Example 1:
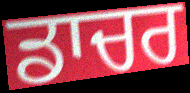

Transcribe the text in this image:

ਡਾਚਰ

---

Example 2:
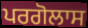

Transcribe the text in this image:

ਪਰਗੋਲਾਸ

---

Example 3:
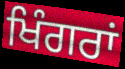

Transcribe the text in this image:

ਖਿੰਗਰਾਂ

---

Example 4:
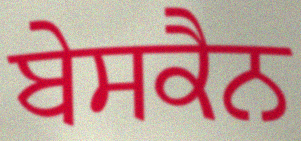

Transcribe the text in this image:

ਬੇਸਕੈਨ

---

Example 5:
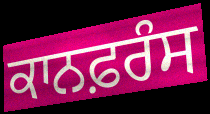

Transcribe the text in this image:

ਕਾਨਫ਼ਰੰਸ